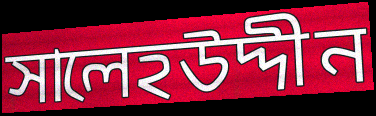
সালেহউদ্দীন